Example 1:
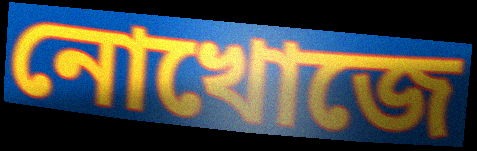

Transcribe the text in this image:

নোখোজে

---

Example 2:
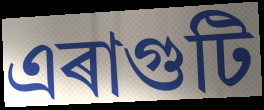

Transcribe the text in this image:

এৰাগুটি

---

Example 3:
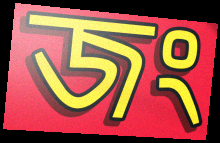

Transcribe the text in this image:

জং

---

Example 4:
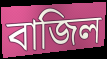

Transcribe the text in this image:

বাজিল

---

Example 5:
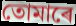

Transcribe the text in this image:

তোমাৰে